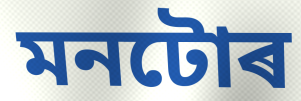
মনটোৰ